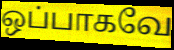
ஒப்பாகவே